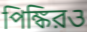
পিঙ্কিরও